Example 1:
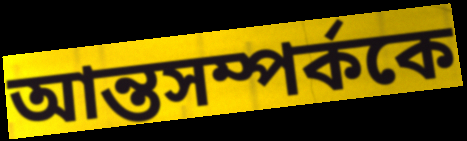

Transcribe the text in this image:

আন্তসম্পর্ককে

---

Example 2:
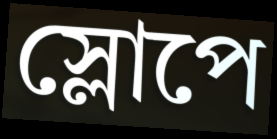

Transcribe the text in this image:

স্লোপে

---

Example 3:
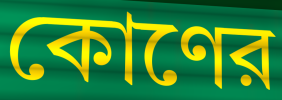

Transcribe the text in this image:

কোণের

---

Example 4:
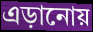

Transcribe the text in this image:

এড়ানোয়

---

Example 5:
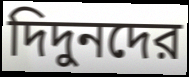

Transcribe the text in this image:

দিদুনদের